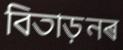
বিতাড়নৰ